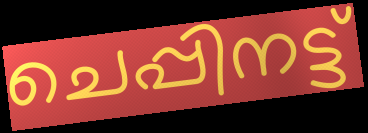
ചെപ്പിനട്ട്